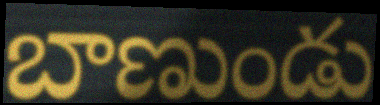
బాణుండు